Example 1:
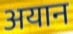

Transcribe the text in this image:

अयान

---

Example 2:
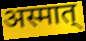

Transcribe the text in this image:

अस्मात्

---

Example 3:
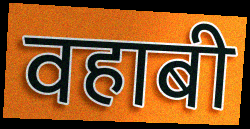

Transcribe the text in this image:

वहाबी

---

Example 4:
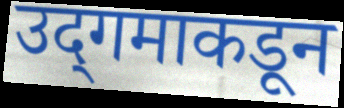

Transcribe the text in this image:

उद्‌गमाकडून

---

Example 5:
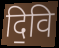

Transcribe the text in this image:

दि॒वि